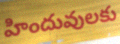
హిందువులకు